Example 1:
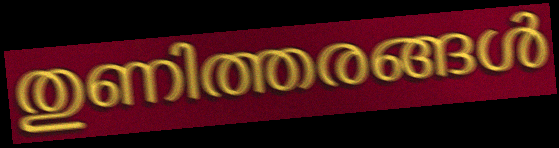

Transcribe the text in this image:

തുണിത്തരങ്ങൾ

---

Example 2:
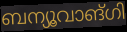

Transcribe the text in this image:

ബന്യൂവാങ്ഗി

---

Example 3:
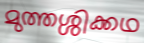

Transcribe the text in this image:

മുത്തശ്ശിക്കഥ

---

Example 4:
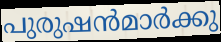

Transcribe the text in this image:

പുരുഷൻമാർക്കു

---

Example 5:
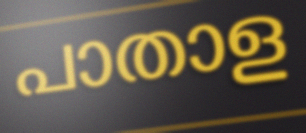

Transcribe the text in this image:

പാതാള